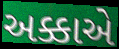
અક્કાએ